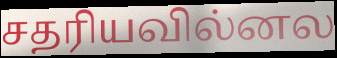
சதரியவில்னல